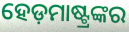
ହେଡ଼ମାଷ୍ଟ୍ରଙ୍କର